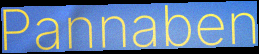
Pannaben